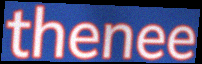
thenee